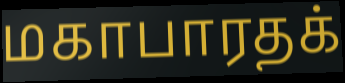
மகாபாரதக்